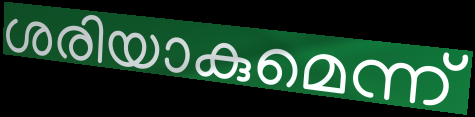
ശരിയാകുമെന്ന്